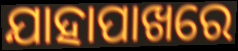
ଯାହାପାଖରେ